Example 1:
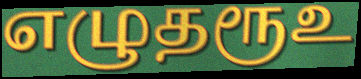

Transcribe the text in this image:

எழுதரூஉ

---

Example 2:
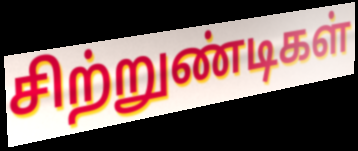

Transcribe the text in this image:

சிற்றுண்டிகள்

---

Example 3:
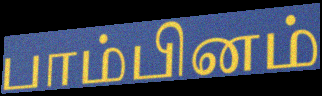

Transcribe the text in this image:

பாம்பினம்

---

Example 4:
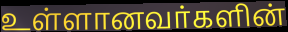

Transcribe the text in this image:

உள்ளானவர்களின்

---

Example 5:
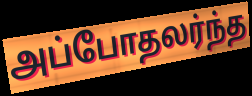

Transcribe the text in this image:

அப்போதலர்ந்த